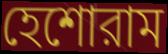
হেশোরাম